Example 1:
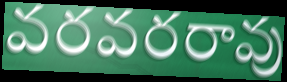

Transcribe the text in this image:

వరవరరావు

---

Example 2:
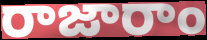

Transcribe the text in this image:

రాజారాం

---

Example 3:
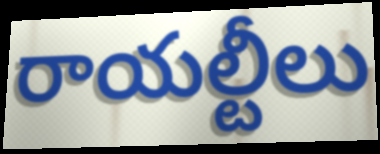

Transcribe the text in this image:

రాయల్టీలు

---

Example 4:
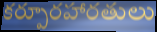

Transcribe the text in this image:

కర్పూరహారతులు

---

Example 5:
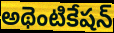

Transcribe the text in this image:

అథెంటికేషన్